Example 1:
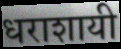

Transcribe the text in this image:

धराशायी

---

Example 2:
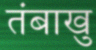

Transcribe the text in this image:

तंबाखु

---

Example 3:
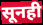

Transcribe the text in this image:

सूनही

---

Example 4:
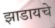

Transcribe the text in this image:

झाडायचे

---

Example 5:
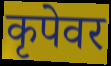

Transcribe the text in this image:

कृपेवर